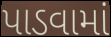
પાડવામાં